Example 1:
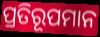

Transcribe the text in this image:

ପ୍ରତିରୂପମାନ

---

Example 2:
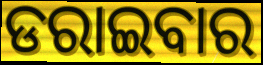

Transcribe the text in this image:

ଡରାଇବାର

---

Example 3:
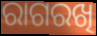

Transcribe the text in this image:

ରାଗରଖି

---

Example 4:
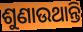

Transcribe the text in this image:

ଶୁଣାଉଥାନ୍ତି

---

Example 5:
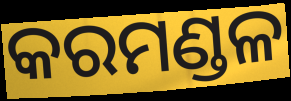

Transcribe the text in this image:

କରମଣ୍ଡଳ